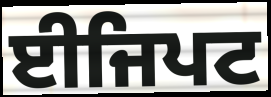
ਈਜਿਪਟ